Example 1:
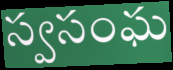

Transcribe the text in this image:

స్వసంఘ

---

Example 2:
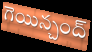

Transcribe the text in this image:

గెయిన్చంద్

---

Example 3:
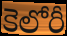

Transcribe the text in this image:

కెలోరీ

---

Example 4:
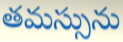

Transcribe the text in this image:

తమస్సును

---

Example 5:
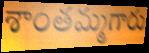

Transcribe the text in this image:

శాంతమ్మగారు